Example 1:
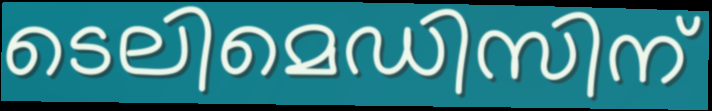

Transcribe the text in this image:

ടെലിമെഡിസിന്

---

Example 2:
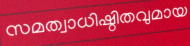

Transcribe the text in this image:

സമത്വാധിഷ്ഠിതവുമായ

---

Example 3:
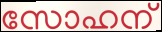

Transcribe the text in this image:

സോഹന്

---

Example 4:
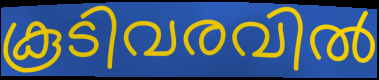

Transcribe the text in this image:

കൂടിവരവിൽ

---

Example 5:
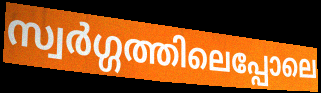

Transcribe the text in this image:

സ്വർഗ്ഗത്തിലെപ്പോലെ